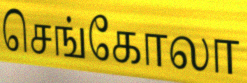
செங்கோலா